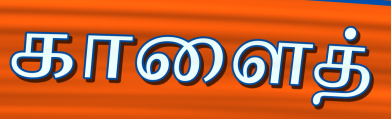
காளைத்